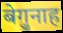
बेगुनाह